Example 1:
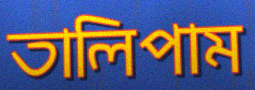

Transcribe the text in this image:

তালিপাম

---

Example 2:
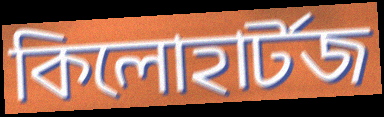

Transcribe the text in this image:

কিলোহার্টজ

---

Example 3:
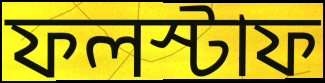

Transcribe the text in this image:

ফলস্টাফ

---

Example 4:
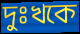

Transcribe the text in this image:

দুঃখকে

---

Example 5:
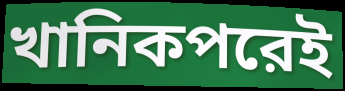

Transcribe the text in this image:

খানিকপরেই